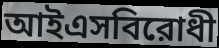
আইএসবিরোধী